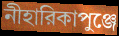
নীহারিকাপুঞ্জে